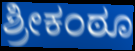
ಶ್ರೀಕಂಠೂ